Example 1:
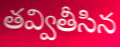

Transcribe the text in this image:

తవ్వితీసిన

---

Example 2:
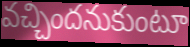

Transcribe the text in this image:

వచ్చిందనుకుంటూ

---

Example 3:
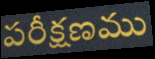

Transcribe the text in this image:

పరీక్షణము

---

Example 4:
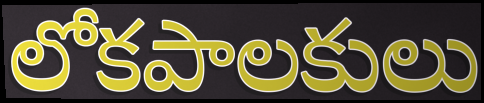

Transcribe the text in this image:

లోకపాలకులు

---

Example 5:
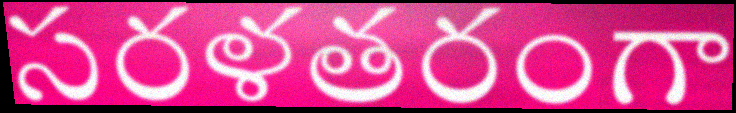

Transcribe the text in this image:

సరళతరంగా